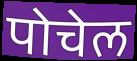
पोचेल